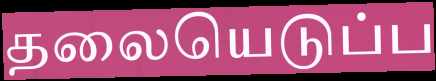
தலையெடுப்ப